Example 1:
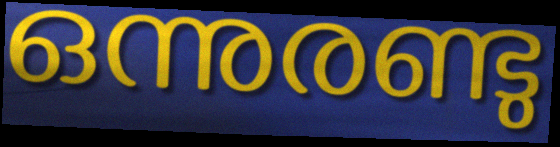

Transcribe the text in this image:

ഒന്നുരണ്ടു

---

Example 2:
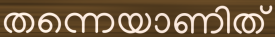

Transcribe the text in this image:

തന്നെയാണിത്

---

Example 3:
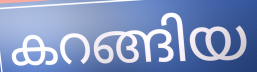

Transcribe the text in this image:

കറങ്ങിയ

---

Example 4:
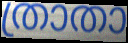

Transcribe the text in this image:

ത്രാതാ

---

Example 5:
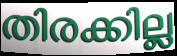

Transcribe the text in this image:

തിരക്കില്ല